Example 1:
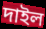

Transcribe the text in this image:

দাইল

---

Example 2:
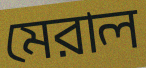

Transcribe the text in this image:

মেরাল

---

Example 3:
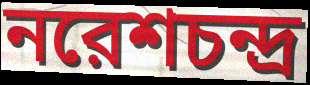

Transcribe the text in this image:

নরেশচন্দ্র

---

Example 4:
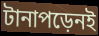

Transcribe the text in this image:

টানাপড়েনই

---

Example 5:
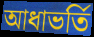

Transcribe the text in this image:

আধাভর্তি